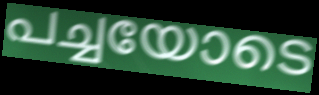
പച്ചയോടെ